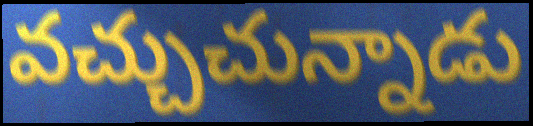
వచ్చుచున్నాడు